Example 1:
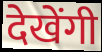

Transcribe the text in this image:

देखेंगी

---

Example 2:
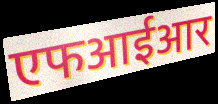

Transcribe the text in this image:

एफआईआर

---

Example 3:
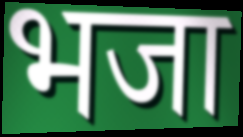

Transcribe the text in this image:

भजा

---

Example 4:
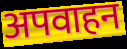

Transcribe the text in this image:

अपवाहन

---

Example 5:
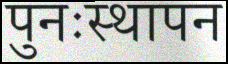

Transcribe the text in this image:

पुनःस्थापन